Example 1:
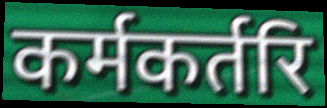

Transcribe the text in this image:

कर्मकर्तरि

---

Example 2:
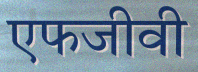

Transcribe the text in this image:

एफजीवी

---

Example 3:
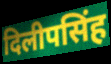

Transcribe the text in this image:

दिलीपसिंह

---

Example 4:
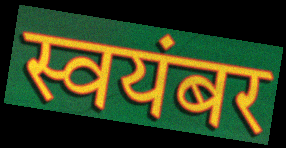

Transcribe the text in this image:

स्वयंबर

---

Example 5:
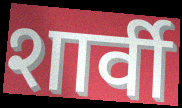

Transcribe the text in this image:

शार्वी